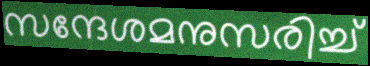
സന്ദേശമനുസരിച്ച്